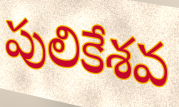
పులికేశవ